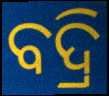
ବଦ୍ରି